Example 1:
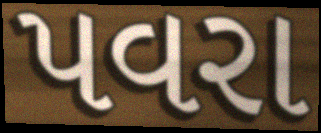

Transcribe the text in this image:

પવરા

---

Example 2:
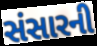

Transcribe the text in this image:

સંસારની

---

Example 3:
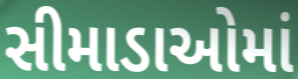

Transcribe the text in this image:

સીમાડાઓમાં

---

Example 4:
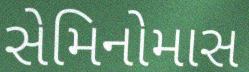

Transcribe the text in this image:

સેમિનોમાસ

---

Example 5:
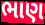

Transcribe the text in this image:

ભાણ